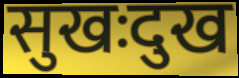
सुखःदुख